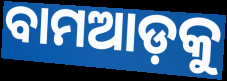
ବାମଆଡ଼କୁ